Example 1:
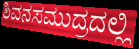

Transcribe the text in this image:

ಶಿವನಸಮುದ್ರದಲ್ಲಿ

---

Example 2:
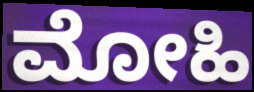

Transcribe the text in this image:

ಮೋಹಿ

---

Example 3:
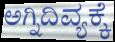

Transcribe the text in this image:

ಅಗ್ನಿದಿವ್ಯಕ್ಕೆ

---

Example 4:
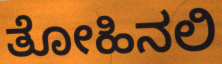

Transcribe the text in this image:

ತೋಹಿನಲಿ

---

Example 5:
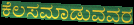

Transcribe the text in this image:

ಕೆಲಸಮಾಡುವವರ